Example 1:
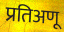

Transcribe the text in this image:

प्रतिअणू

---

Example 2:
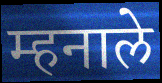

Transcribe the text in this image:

म्हनाले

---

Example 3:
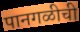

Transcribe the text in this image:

पानगळीची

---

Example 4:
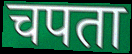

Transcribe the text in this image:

चपता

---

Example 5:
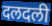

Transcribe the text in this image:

दलदली